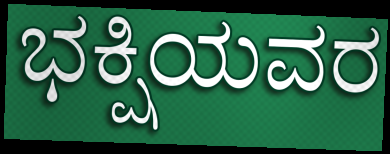
ಭಕ್ಷಿಯವರ